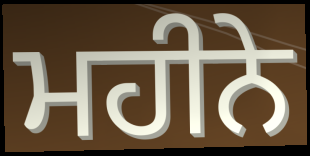
ਮਹੀਨੇ